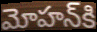
మోహన్‌కి